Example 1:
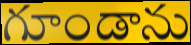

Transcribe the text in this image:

గూండాను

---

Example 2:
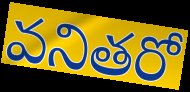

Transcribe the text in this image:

వనితరో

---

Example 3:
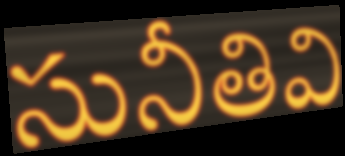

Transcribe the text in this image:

సునీతివి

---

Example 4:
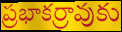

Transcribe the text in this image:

ప్రభాకర్రావుకు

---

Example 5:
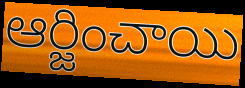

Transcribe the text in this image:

ఆర్జించాయి